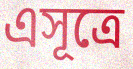
এসূত্রে